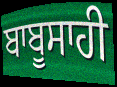
ਬਾਬੂਸਾਹੀ